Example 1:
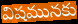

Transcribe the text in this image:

విషమునకు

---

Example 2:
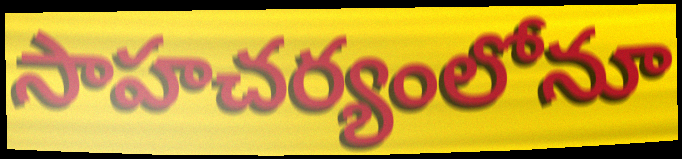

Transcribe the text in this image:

సాహచర్యంలోనూ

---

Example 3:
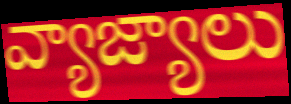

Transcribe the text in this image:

వ్యాజ్యాలు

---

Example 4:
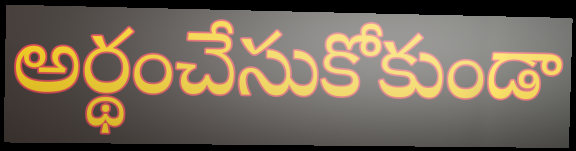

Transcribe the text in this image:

అర్థంచేసుకోకుండా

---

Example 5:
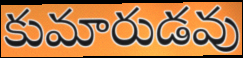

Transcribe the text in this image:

కుమారుడవు